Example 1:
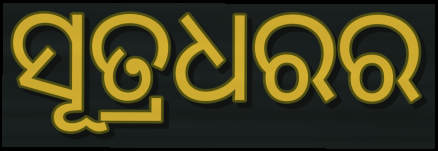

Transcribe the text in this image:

ସୂତ୍ରଧରର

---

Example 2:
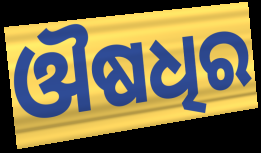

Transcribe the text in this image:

ଔଷଧିର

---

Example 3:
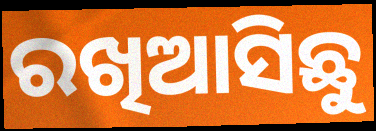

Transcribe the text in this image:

ରଖିଆସିଛୁ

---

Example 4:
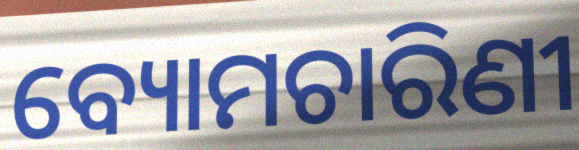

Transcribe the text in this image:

ବ୍ୟୋମଚାରିଣୀ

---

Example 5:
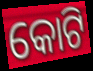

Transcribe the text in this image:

କୋଟି